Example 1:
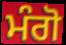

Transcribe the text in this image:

ਮੰਗੋ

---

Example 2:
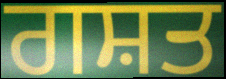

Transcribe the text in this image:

ਗਸ਼ਤ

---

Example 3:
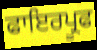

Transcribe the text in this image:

ਫਾਇਰਪ੍ਰੂਫ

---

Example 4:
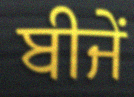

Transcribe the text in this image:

ਬੀਜੇਂ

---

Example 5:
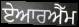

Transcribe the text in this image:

ਏਆਰਐੱਮ